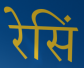
रेसिं